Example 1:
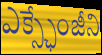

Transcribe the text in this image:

ఎక్స్ఛేంజీని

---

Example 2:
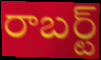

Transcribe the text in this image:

రాబర్ట్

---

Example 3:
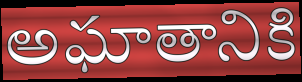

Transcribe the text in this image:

అఘాతానికి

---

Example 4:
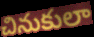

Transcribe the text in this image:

చినుకులా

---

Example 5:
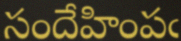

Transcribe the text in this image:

సందేహింపఁ